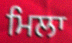
ਮਿਲਾ